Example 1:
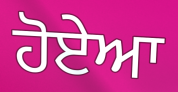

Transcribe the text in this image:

ਹੋਏਆ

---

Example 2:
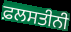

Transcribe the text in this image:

ਫ਼ਲਸਤੀਨੀ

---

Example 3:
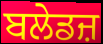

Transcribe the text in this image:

ਬਲੇਡਜ਼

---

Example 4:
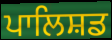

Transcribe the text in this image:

ਪਾਲਿਸ਼ਡ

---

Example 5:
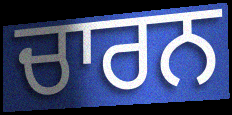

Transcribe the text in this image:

ਚਾਰਨ